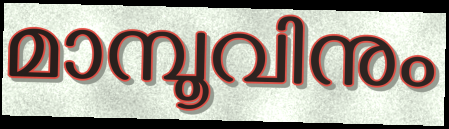
മാമ്പൂവിനും